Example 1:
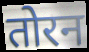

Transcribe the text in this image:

तोरन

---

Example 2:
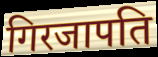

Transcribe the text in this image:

गिरजापति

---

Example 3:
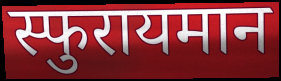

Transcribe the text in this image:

स्फुरायमान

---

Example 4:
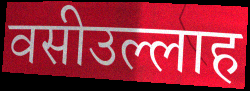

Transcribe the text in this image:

वसीउल्लाह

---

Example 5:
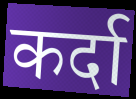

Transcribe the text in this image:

कर्दा